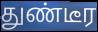
துண்டீர